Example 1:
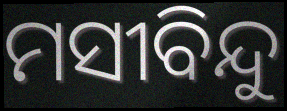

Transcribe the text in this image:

ମସୀବିନ୍ଦୁ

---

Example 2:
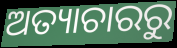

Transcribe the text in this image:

ଅତ୍ୟାଚାରରୁ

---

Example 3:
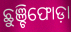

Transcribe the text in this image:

ଛୁଞ୍ଚିଫୋଡ଼ା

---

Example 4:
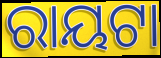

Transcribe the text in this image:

ରାୟଟା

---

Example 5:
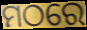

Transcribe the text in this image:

ମଠରେ